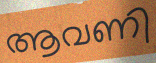
ആവണി